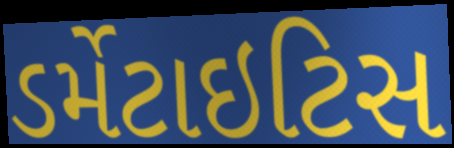
ડર્મેટાઇટિસ